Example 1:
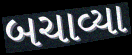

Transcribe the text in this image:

બચાવ્યા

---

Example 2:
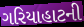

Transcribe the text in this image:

ગરિયાહાટની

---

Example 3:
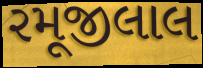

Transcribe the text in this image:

રમૂજીલાલ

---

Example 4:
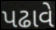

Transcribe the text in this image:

પઢાવે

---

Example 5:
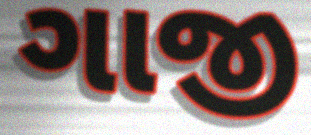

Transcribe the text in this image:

ગાજી